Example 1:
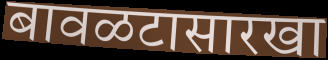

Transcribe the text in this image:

बावळटासारखा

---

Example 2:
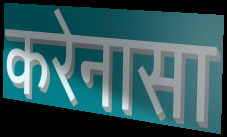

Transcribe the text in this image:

करेनासा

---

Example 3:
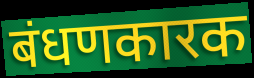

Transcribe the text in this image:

बंधणकारक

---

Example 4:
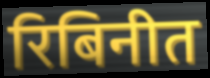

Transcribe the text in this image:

रिबिनीत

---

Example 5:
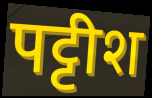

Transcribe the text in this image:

पट्टीश